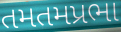
તમતમપ્રભા